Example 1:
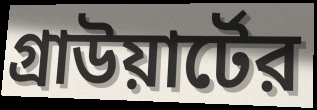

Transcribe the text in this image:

গ্রাউয়ার্টের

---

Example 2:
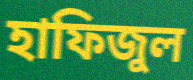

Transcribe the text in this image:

হাফিজুল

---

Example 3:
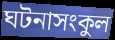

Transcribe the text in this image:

ঘটনাসংকুল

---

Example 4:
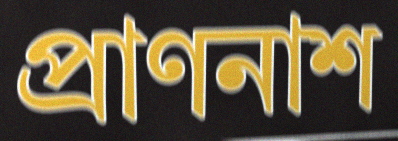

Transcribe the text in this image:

প্রাণনাশ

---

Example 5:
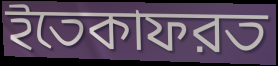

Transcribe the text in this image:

ইতেকাফরত